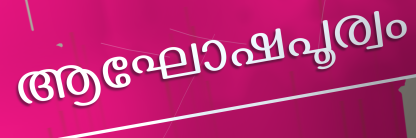
ആഘോഷപൂര്വം